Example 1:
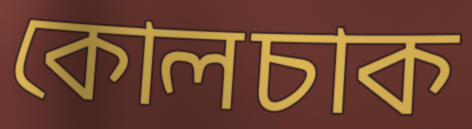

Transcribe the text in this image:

কোলচাক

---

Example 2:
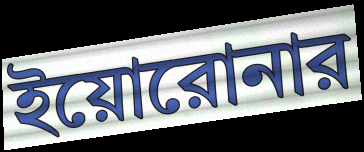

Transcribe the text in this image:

ইয়োরোনার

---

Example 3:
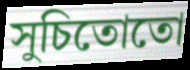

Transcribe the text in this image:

সুচিতোতো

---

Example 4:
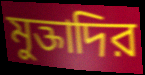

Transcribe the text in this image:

মুক্তাদির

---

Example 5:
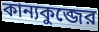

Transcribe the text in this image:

কান্যকুব্জের